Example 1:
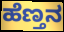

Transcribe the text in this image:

ಹೆಣ್ತನ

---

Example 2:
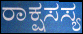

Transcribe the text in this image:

ರಾಕ್ಷಸಸ್ಯ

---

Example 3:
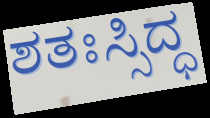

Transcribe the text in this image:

ಶತಃಸ್ಸಿದ್ಧ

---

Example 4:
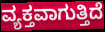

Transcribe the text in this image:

ವ್ಯಕ್ತವಾಗುತ್ತಿದೆ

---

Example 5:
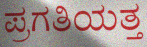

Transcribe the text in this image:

ಪ್ರಗತಿಯತ್ತ